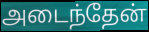
அடைந்தேன்